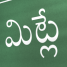
మిట్లే